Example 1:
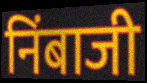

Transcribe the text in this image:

निंबाजी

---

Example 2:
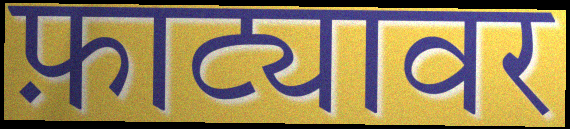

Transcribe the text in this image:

फ़ाट्यावर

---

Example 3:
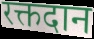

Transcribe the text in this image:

रक्तदान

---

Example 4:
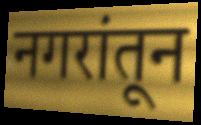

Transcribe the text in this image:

नगरांतून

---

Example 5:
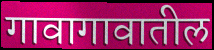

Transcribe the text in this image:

गावागावातील